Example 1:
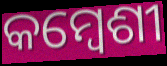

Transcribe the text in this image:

କମ୍ବେଶୀ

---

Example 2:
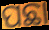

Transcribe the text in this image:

ପଛା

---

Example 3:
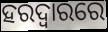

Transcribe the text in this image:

ହରଦ୍ୱାରରେ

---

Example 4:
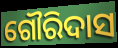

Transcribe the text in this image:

ଗୌରିଦାସ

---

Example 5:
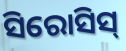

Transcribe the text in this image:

ସିରୋସିସ୍